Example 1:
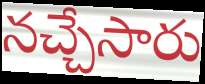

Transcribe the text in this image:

నచ్చేసారు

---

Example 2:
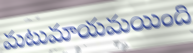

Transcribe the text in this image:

మటుమాయమయింది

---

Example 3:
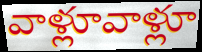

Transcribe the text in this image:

వాళ్లూవాళ్లూ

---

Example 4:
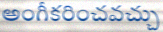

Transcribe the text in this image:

అంగీకరించవచ్చు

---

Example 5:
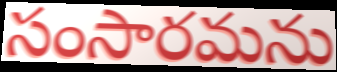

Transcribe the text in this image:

సంసారమను